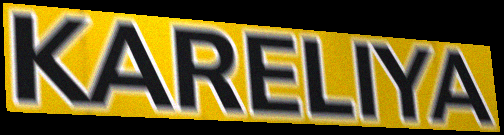
KARELIYA